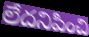
లేదనిపించి